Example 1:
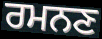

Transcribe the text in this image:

ਰਮਨਣ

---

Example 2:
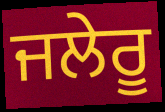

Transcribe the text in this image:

ਜਲੇਰੂ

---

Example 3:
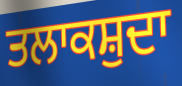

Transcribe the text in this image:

ਤਲਾਕਸ਼ੁਦਾ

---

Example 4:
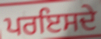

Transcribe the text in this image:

ਪਰਇਸਦੇ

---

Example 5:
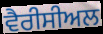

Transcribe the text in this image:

ਵੈਰੀਸੀਅਲ